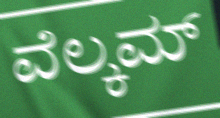
ವೆಲ್ಕಮ್